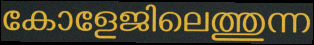
കോളേജിലെത്തുന്ന